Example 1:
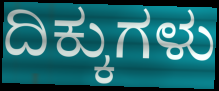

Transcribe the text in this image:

ದಿಕ್ಕುಗಳು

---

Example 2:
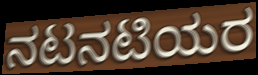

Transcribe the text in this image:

ನಟನಟಿಯರ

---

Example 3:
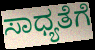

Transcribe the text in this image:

ಸಾಧ್ಯತೆಗೆ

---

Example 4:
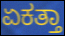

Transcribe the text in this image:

ಏಕತ್ತಾ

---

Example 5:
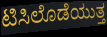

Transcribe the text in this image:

ಟಿಸಿಲೊಡೆಯುತ್ತ